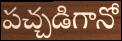
పచ్చడిగానో